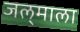
जल्माला